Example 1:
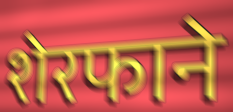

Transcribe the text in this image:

शेरफाने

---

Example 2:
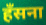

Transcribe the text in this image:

हँसना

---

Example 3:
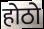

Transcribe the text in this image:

होठो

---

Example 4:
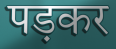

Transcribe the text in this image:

पड़कर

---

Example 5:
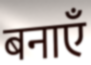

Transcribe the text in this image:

बनाएँ